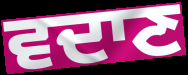
ਵਦਾਣ